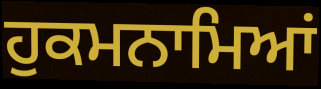
ਹੁਕਮਨਾਮਿਆਂ